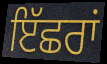
ਇੱਛਰਾਂ